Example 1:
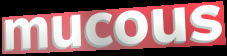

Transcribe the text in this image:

mucous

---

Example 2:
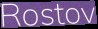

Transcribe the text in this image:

Rostov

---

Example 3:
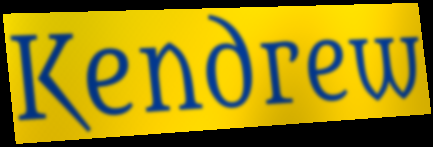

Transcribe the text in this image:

Kendrew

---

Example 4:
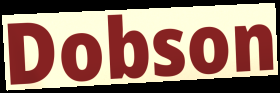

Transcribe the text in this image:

Dobson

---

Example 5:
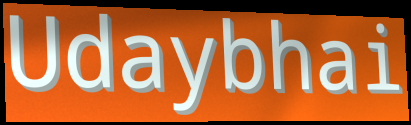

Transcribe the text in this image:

Udaybhai